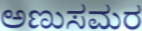
ಅಣುಸಮರ